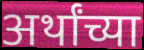
अर्थांच्या